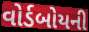
વોર્ડબોયની